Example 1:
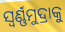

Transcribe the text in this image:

ସ୍ଵର୍ଣ୍ଣମୁଦ୍ରାକୁ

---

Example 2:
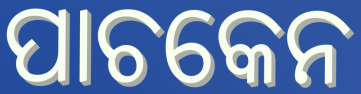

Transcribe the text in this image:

ପାଚକେନ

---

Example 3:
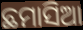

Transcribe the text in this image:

ଛମାସିଆ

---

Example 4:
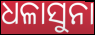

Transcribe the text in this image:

ଧଳାସୁନା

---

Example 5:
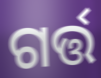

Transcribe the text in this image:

ଗର୍ତ୍ତ